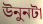
উনুনটা